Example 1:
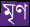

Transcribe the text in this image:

মৃণ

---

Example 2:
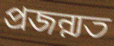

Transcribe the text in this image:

প্ৰজন্মত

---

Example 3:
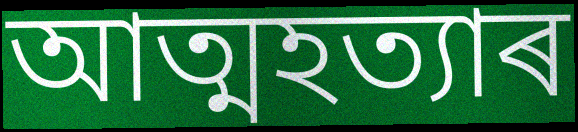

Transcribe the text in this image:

আত্মহত্যাৰ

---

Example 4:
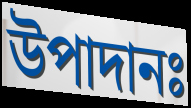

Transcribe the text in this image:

উপাদানঃ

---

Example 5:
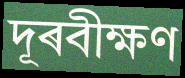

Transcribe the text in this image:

দূৰবীক্ষণ